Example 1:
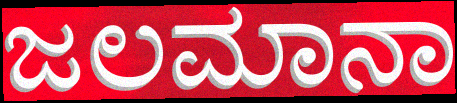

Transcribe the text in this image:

ಜಲಮಾನಾ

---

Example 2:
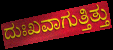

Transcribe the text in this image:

ದುಃಖವಾಗುತ್ತಿತ್ತು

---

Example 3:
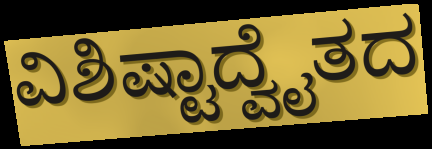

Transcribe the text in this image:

ವಿಶಿಷ್ಟಾದ್ವೈತದ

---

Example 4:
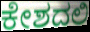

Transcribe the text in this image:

ಕೇಶದಲಿ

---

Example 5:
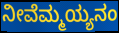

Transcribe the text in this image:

ನೀವೆಮ್ಮಯ್ಯನಂ